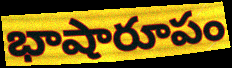
భాషారూపం